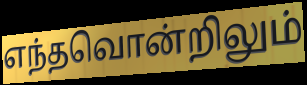
எந்தவொன்றிலும்